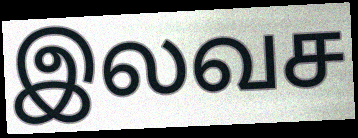
இலவச